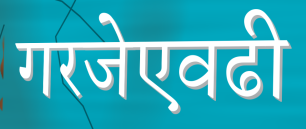
गरजेएवढी